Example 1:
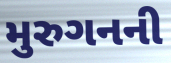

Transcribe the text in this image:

મુરુગનની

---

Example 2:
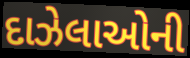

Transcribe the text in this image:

દાઝેલાઓની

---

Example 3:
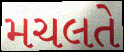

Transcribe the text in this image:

મચલતે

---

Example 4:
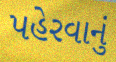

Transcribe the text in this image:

પહેરવાનું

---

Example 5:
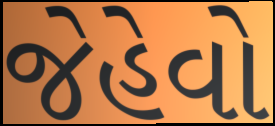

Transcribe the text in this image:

જેહેવો